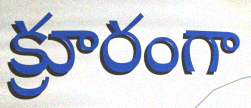
క్రూరంగా